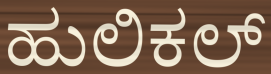
ಹುಲಿಕಲ್